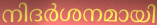
നിദർശനമായി